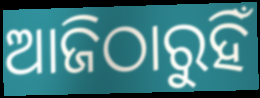
ଆଜିଠାରୁହିଁ